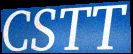
CSTT